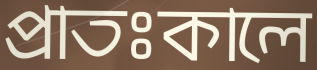
প্রাতঃকালে